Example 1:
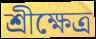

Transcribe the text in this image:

শ্রীক্ষেত্র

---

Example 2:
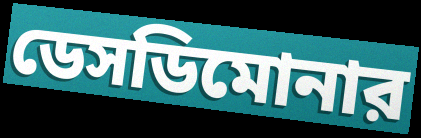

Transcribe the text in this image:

ডেসডিমোনার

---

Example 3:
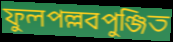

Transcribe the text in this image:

ফুলপল্লবপুঞ্জিত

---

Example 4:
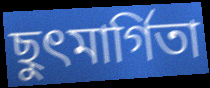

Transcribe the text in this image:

ছুৎমার্গিতা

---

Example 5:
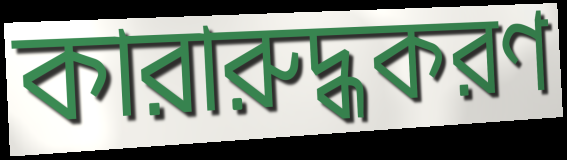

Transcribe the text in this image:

কারারুদ্ধকরণ